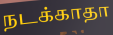
நடக்காதா